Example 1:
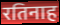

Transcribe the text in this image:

रतिनाह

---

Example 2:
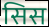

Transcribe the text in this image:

सिस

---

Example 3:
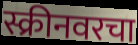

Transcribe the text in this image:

स्क्रीनवरचा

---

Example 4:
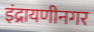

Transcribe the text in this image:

इंद्रायणीनगर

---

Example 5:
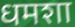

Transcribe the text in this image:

धमशा